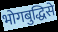
भोगबुद्धिसे